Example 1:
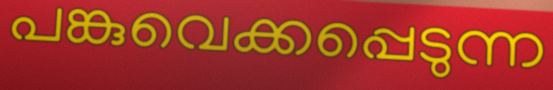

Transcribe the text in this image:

പങ്കുവെക്കപ്പെടുന്ന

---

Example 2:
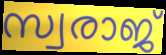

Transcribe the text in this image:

സ്വരാജ്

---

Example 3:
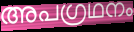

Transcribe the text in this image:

അപഗ്രഥനം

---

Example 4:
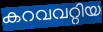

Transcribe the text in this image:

കറവവറ്റിയ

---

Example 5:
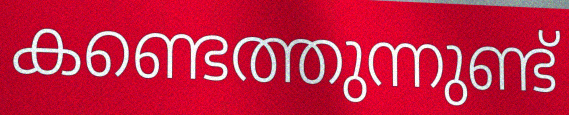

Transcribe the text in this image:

കണ്ടെത്തുന്നുണ്ട്